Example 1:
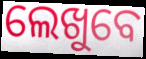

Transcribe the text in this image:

ଲେଖୁବେ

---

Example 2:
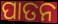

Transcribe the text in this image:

ପାତନ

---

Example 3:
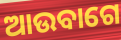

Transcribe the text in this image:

ଆଉବାଗେ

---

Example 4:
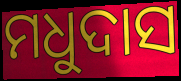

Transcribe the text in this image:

ମଧୁଦାସ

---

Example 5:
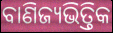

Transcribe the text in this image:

ବାଣିଜ୍ୟଭିତ୍ତିକ